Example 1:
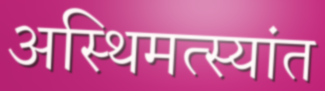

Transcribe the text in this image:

अस्थिमत्स्यांत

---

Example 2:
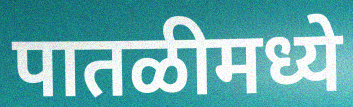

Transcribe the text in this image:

पातळीमध्ये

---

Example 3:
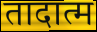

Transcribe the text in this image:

तादात्म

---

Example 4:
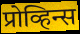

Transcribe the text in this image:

प्रोव्हिन्स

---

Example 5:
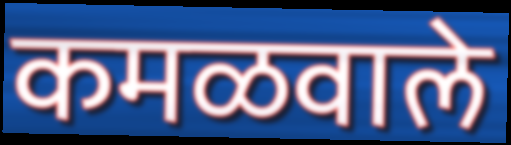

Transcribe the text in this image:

कमळवाले